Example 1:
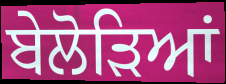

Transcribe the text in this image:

ਬੇਲੋੜਿਆਂ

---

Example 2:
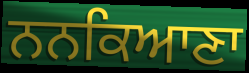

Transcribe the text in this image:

ਨਨਕਿਆਣਾ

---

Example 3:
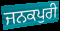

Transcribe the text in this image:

ਜਨਕਪੁਰੀ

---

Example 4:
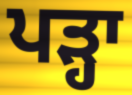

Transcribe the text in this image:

ਪੜ੍ਹਾ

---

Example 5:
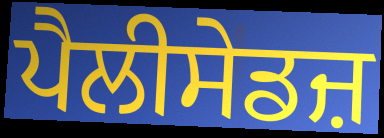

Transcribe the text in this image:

ਪੈਲੀਸੇਡਜ਼